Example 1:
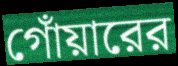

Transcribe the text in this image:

গোঁয়ারের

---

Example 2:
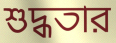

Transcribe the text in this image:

শুদ্ধতার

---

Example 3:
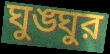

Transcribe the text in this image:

ঘুঙ্ঘুর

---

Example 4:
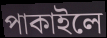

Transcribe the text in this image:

পাকাইলে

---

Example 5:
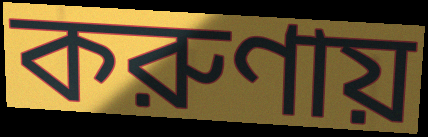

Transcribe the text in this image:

করুণায়